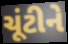
ચૂંટીને